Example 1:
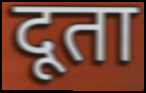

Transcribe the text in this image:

दूता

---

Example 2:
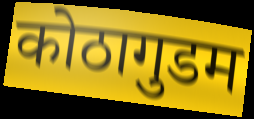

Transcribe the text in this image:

कोठागुडम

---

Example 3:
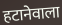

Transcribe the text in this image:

हटानेवाला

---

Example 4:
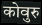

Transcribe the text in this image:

कोवुरु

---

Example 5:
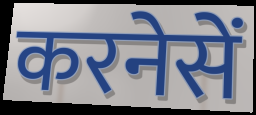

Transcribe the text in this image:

करनेसें